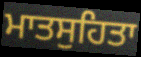
ਮਾਤਸੁਹਿਤਾ